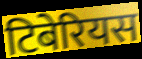
टिबेरियस